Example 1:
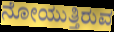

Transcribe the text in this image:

ನೋಯುತ್ತಿರುವ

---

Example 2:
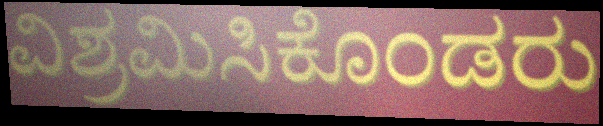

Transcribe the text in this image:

ವಿಶ್ರಮಿಸಿಕೊಂಡರು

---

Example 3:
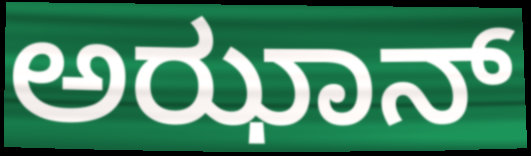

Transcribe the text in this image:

ಅಝಾನ್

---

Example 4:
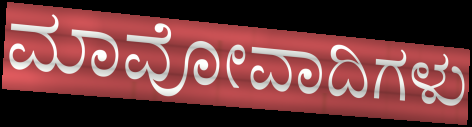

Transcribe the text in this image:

ಮಾವೋವಾದಿಗಳು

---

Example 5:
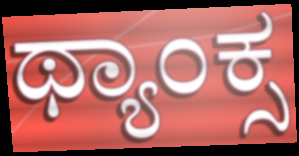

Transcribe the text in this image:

ಥ್ಯಾಂಕ್ಸ